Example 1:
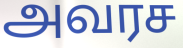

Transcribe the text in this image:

அவரச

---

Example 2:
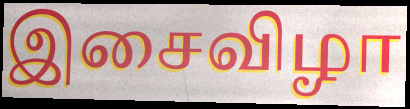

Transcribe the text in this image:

இசைவிழா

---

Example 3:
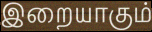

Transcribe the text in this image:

இறையாகும்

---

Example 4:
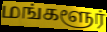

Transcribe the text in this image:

மங்களூர்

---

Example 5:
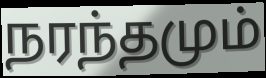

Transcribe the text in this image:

நரந்தமும்